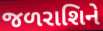
જળરાશિને